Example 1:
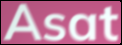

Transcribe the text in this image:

Asat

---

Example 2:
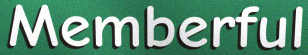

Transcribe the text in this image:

Memberful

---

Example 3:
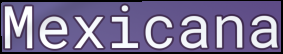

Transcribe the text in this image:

Mexicana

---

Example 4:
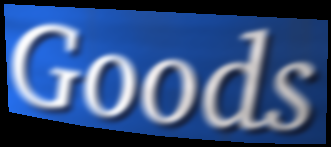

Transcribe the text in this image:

Goods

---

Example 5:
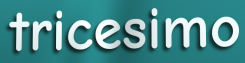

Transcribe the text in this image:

tricesimo